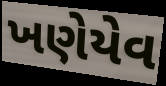
ખણેયેવ